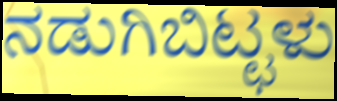
ನಡುಗಿಬಿಟ್ಟಳು